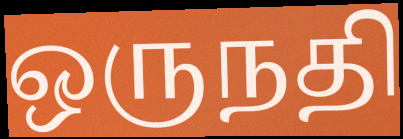
ஒருநதி